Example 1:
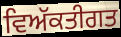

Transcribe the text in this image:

ਵਿਅੱਕਤੀਗਤ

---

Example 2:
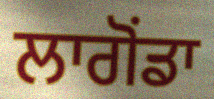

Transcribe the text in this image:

ਲਾਗੋਂਡਾ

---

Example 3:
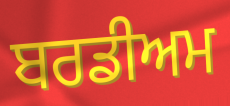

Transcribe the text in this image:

ਬਰਡੀਅਮ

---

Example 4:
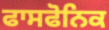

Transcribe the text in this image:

ਫਾਸਫੋਨਿਕ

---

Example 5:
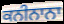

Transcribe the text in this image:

ਕਨੀਨਾਨਾ